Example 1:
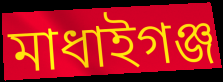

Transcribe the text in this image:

মাধাইগঞ্জ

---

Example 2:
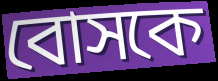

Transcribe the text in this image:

বোসকে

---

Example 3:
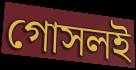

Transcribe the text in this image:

গোসলই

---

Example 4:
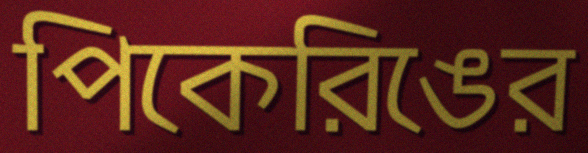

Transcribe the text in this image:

পিকেরিঙের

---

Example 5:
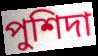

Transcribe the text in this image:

পুশিদা